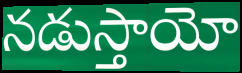
నడుస్తాయో